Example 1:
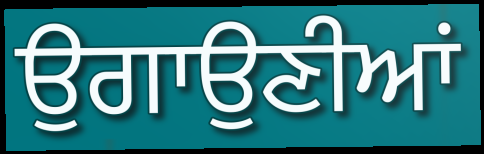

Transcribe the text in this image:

ਉਗਾਉਣੀਆਂ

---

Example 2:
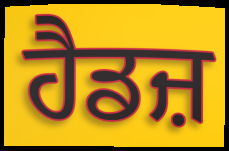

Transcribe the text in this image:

ਹੈਡਜ਼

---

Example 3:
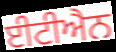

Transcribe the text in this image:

ਈਟੀਐਨ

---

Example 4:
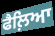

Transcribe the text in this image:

ਫੈਲ਼ਿਆ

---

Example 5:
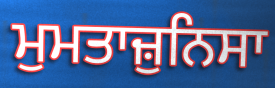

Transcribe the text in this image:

ਮੁਮਤਾਜ਼ੁਨਿਸਾ